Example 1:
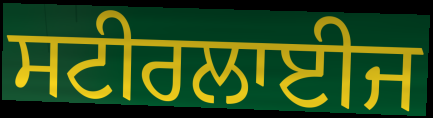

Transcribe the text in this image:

ਸਟੀਰਲਾਈਜ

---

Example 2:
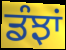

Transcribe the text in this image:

ਡੰਝਾਂ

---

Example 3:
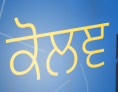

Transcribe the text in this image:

ਕੋਲਞ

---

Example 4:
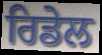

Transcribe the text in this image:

ਰਿਡੇਲ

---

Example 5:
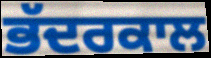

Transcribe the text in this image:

ਭੱਦਰਕਾਲ